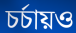
চর্চায়ও